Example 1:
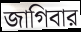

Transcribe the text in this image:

জাগিবার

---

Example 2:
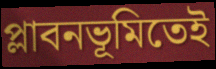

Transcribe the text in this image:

প্লাবনভূমিতেই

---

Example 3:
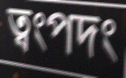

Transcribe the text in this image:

ত্বংপদং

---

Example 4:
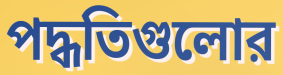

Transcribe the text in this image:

পদ্ধতিগুলোর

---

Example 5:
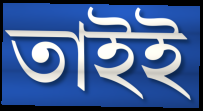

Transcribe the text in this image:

তাইই